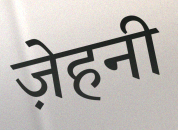
ज़ेहनी